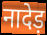
नादेड़